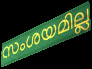
സംശയമില്ല